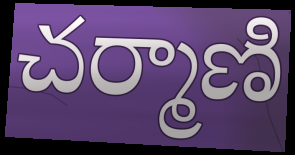
చర్మాణి